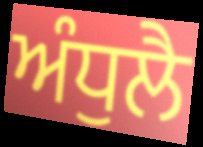
ਅੰਧੁਲੈ